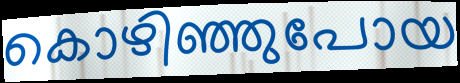
കൊഴിഞ്ഞുപോയ